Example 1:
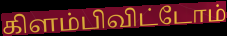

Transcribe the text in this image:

கிளம்பிவிட்டோம்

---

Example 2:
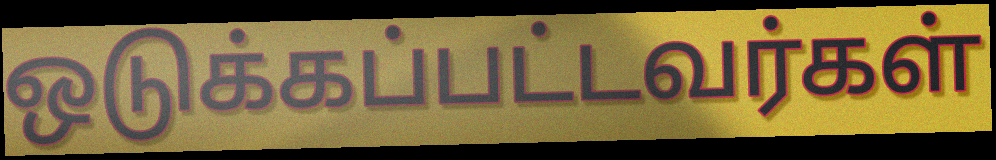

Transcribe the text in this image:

ஒடுக்கப்பட்டவர்கள்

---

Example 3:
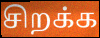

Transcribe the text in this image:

சிறக்க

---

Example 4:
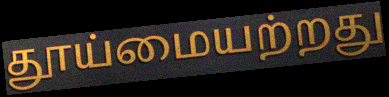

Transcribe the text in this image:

தூய்மையற்றது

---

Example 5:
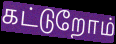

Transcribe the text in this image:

கட்டுறோம்